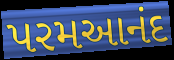
પરમઆનંદ